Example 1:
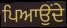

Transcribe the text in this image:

ਪਿਆਉਂਦੇ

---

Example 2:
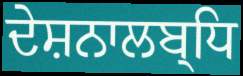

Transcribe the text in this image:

ਦੇਸ਼ਨਾਲਬ੍ਧਿ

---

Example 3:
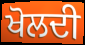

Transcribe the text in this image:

ਖੋਲਦੀ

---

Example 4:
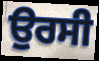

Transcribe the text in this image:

ਉਰਸੀ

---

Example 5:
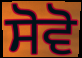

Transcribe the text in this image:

ਸੋਵੋ